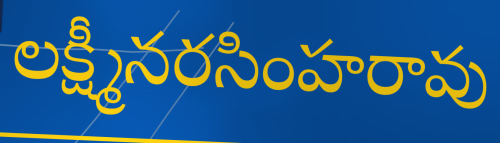
లక్ష్మీనరసింహరావు